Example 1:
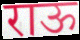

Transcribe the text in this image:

राऊ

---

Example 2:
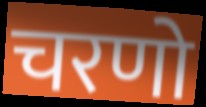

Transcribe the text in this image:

चरणो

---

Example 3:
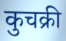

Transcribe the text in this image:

कुचक्री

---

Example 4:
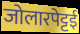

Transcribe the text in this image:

जोलारपेट्टई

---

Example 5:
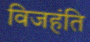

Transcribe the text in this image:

विजहंति